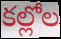
కల్లోల